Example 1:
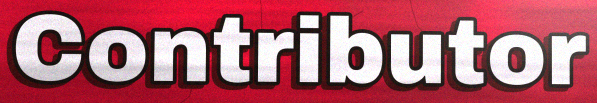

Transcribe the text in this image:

Contributor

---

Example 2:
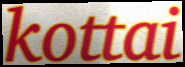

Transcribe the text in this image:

kottai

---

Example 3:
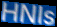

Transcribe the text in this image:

HNIs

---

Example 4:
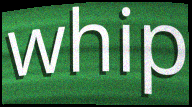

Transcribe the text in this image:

whip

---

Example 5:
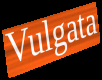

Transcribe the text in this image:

Vulgata